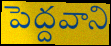
పెద్దవాని